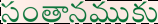
సంతానముకు